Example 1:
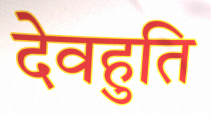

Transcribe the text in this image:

देवहुति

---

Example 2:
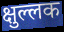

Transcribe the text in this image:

क्षुल्लक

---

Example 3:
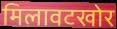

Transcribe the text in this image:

मिलावटखोर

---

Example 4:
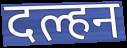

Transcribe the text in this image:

दल्हन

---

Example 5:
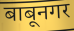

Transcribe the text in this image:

बाबूनगर